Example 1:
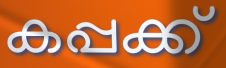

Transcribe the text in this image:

കപ്പക്ക്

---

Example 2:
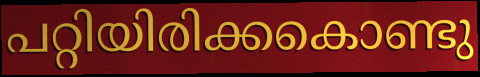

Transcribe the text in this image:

പറ്റിയിരിക്കകൊണ്ടു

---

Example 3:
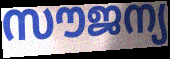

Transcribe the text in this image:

സൗജന്യ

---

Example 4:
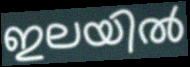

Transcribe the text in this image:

ഇലയിൽ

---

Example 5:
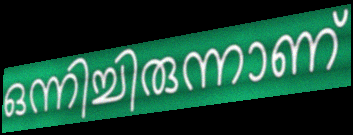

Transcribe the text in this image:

ഒന്നിച്ചിരുന്നാണ്